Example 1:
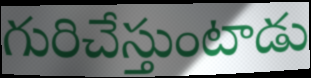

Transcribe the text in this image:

గురిచేస్తుంటాడు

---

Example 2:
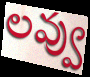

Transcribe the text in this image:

లవ్వు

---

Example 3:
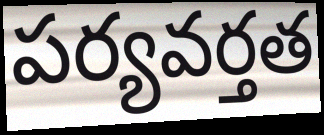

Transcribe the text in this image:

పర్యవర్తత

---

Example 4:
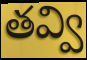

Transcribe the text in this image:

తవ్వి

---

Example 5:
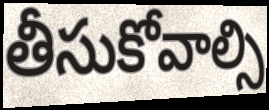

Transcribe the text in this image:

తీసుకోవాల్సి